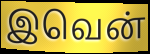
இவென்